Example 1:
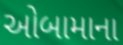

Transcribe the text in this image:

ઓબામાના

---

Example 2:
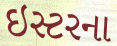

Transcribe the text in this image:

ઇસ્ટરના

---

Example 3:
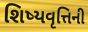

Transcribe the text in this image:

શિષ્યવૃત્તિની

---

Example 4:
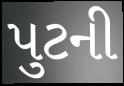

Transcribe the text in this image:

પુટની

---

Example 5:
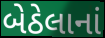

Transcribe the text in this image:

બેઠેલાનાં